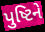
પુષ્ટિને